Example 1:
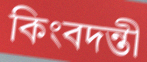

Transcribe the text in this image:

কিংবদন্তী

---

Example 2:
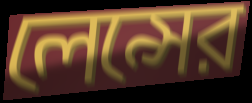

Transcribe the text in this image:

লেন্সের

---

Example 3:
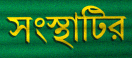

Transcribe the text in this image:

সংস্থাটির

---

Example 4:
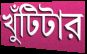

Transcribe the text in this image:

খুঁটিটার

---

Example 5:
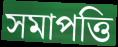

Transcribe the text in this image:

সমাপত্তি